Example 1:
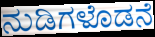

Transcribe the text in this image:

ನುಡಿಗಳೊಡನೆ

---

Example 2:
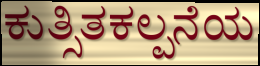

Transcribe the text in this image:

ಕುತ್ಸಿತಕಲ್ಪನೆಯ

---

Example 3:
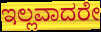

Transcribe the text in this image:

ಇಲ್ಲವಾದರೇ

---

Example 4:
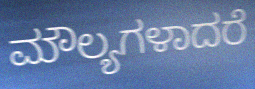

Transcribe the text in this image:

ಮೌಲ್ಯಗಳಾದರೆ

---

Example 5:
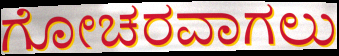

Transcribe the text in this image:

ಗೋಚರವಾಗಲು